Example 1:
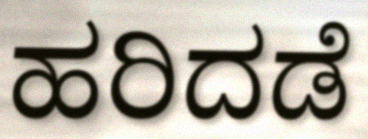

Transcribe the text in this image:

ಹರಿದಡೆ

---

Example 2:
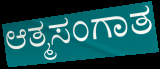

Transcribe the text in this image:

ಆತ್ಮಸಂಗಾತ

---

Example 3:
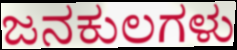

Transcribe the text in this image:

ಜನಕುಲಗಳು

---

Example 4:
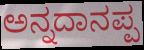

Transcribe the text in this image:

ಅನ್ನದಾನಪ್ಪ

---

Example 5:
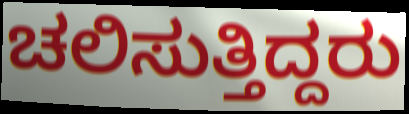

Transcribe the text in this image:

ಚಲಿಸುತ್ತಿದ್ದರು